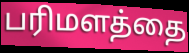
பரிமளத்தை